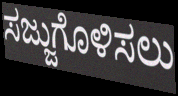
ಸಜ್ಜುಗೊಳಿಸಲು